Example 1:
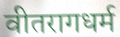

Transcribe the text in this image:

वीतरागधर्म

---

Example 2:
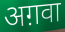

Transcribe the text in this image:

अग़वा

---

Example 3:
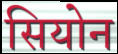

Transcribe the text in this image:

सियोन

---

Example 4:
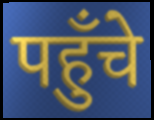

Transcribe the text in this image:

पहुँचे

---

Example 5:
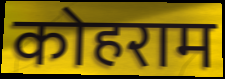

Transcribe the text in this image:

कोहराम